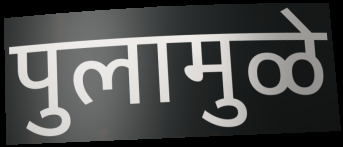
पुलामुळे